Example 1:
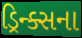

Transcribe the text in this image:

ડ્રિન્ક્સના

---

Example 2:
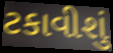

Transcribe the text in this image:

ટકાવીશું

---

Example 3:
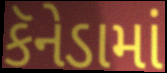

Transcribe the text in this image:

કૅનેડામાં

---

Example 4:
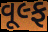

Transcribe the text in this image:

વૂલ્ફ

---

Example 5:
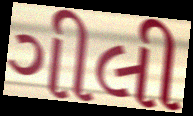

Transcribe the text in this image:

ગીલી